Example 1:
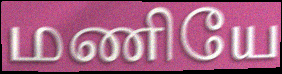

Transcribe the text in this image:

மணியே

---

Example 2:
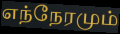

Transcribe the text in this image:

எந்நேரமும்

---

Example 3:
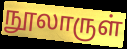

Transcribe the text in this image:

நூலாருள்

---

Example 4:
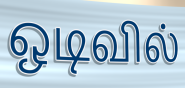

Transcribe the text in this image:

ஒடிவில்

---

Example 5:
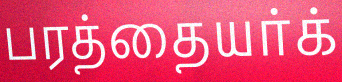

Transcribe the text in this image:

பரத்தையர்க்